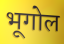
भूगोल